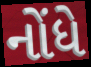
નોંધે